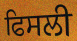
ਫਿਸਲੀ